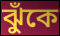
ঝুঁকে